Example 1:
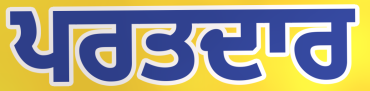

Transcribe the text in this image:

ਪਰਤਦਾਰ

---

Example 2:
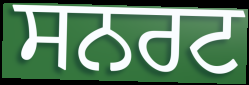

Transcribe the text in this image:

ਸਨਰਟ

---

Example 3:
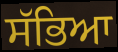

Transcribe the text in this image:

ਸੱਭਿਆ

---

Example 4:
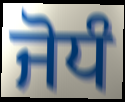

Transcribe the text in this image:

ਜੋਧੰ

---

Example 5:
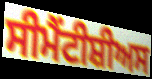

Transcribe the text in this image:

ਸੀਮੈਂਟੀਸ਼ੀਅਸ